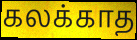
கலக்காத